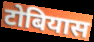
टोबियास